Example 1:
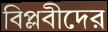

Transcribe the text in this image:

বিপ্লবীদের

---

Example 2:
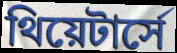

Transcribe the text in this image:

থিয়েটার্সে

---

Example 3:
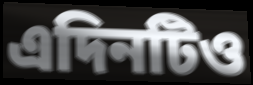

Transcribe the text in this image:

এদিনটিও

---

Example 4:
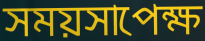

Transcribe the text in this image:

সময়সাপেক্ষ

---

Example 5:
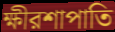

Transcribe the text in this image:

ক্ষীরশাপাতি